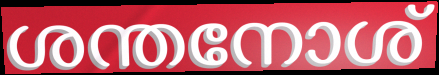
ശന്തനോശ്